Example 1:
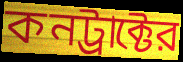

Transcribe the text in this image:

কনট্রাক্টের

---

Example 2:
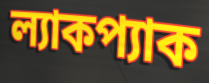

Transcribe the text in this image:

ল্যাকপ্যাক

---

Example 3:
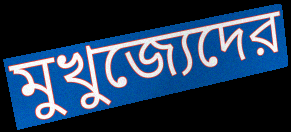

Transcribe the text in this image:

মুখুজ্যেদের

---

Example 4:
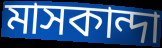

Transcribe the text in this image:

মাসকান্দা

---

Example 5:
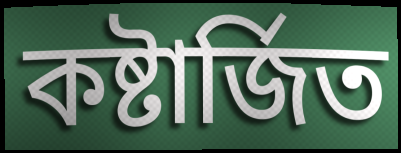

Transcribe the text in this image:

কষ্টার্জিত